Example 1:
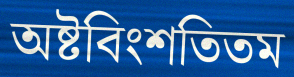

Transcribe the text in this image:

অষ্টবিংশতিতম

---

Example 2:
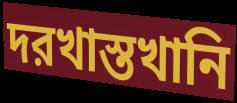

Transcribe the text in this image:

দরখাস্তখানি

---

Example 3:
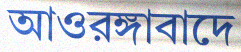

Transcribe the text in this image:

আওরঙ্গাবাদে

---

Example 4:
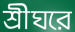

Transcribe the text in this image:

শ্রীঘরে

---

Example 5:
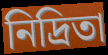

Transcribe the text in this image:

নিদ্রিতা